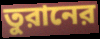
তুরানের